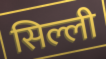
सिल्ली